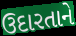
ઉદારતાને